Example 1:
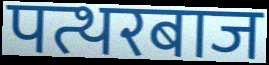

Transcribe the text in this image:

पत्थरबाज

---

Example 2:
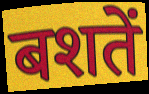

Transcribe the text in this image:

बशतें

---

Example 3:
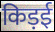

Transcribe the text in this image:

किड़ई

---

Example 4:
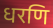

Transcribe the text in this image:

धरणि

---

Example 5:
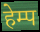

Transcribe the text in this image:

हेम्प